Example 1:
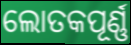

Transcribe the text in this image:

ଲୋତକପୂର୍ଣ୍ଣ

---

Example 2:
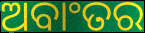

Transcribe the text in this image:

ଅବାଂତର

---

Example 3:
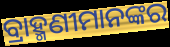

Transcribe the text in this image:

ବ୍ରାହ୍ମଣୀମାନଙ୍କର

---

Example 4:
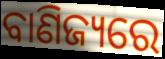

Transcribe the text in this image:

ବାଣିଜ୍ୟରେ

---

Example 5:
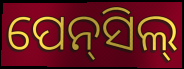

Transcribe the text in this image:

ପେନ୍‌ସିଲ୍